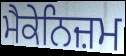
ਮੈਕੇਨਿਜ਼ਮ